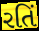
રતિં